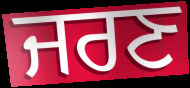
ਜਰਣ